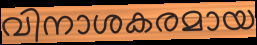
വിനാശകരമായ